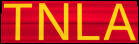
TNLA